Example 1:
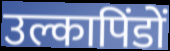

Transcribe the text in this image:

उल्कापिंडों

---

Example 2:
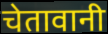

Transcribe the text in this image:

चेतावानी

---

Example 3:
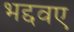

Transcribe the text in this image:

भद्दवए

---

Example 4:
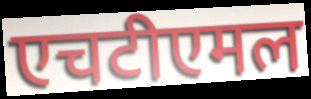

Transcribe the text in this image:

एचटीएमल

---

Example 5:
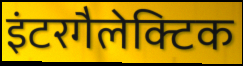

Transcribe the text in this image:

इंटरगैलेक्टिक